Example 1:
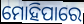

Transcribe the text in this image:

ମୋହିପାରେ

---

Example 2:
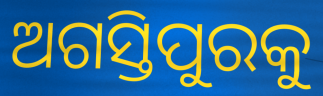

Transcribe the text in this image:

ଅଗସ୍ତିପୁରକୁ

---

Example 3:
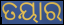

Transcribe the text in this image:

ତୟାର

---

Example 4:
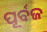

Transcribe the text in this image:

ପୂର୍ବଜ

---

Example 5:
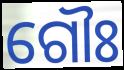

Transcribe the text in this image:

ଗୌଃ